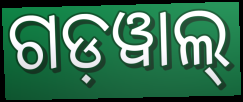
ଗଡ଼ୱାଲ୍